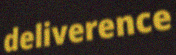
deliverence